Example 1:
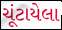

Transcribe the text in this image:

ચૂંટાયેલા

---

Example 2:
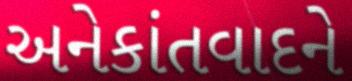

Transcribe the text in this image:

અનેકાંતવાદને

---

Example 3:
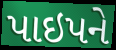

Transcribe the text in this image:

પાઇપને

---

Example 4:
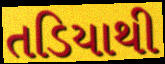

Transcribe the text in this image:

તડિયાથી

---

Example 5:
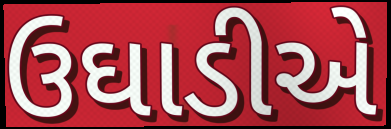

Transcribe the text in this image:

ઉઘાડીએ